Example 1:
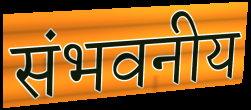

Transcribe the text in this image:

संभवनीय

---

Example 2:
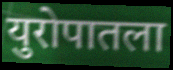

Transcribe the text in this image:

युरोपातला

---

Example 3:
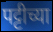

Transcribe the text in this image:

पट्टीच्या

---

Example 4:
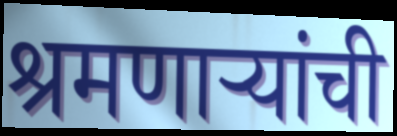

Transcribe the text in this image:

श्रमणाऱ्यांची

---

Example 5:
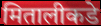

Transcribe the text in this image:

मितालीकडे